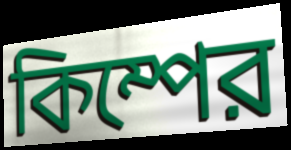
কিম্পের